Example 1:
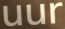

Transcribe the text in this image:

uur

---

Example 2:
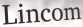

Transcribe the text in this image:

Lincom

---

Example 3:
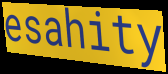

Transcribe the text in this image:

esahity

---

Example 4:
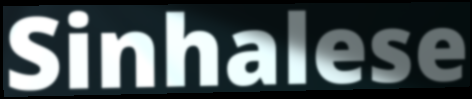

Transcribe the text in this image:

Sinhalese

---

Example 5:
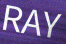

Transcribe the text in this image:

RAY